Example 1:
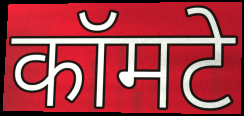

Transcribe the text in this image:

कॉमटे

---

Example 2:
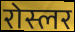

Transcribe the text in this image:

रोस्लर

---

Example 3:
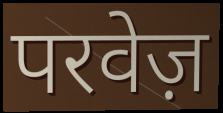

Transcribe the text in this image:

परवेज़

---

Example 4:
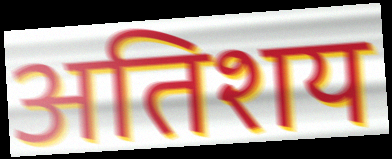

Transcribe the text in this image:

अतिशय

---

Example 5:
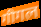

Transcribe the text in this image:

गीगल